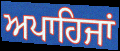
ਅਪਾਹਿਜਾਂ